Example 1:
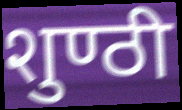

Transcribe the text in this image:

शुण्ठी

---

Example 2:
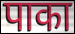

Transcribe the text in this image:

पाका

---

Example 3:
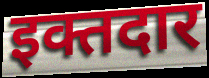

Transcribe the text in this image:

इक्तदार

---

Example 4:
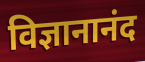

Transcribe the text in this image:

विज्ञानानंद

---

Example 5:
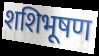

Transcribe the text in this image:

शशिभूषण